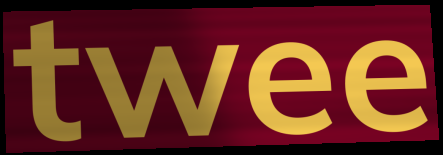
twee